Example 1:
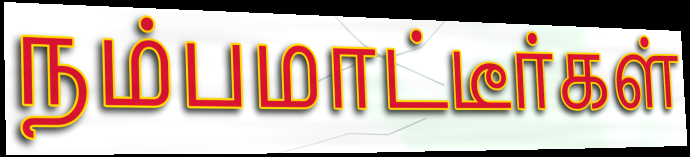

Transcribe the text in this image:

நம்பமாட்டீர்கள்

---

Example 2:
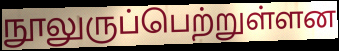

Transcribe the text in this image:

நூலுருப்பெற்றுள்ளன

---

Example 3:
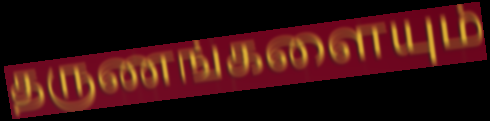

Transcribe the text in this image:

தருணங்களையும்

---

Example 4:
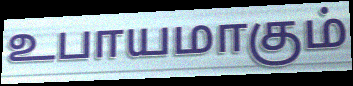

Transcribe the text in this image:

உபாயமாகும்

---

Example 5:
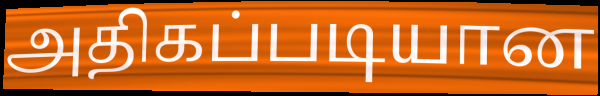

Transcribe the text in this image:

அதிகப்படியான